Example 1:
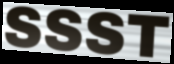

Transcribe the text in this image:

SSST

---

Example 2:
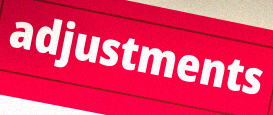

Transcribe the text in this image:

adjustments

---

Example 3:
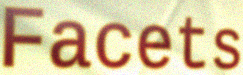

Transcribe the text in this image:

Facets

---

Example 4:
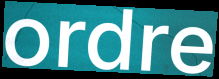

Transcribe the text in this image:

ordre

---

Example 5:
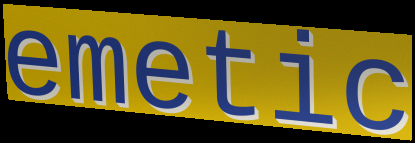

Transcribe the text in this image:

emetic